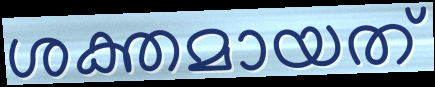
ശക്തമായത്